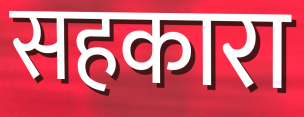
सहकारा